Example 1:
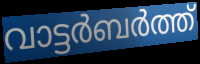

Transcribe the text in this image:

വാട്ടർബർത്ത്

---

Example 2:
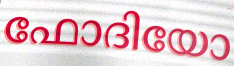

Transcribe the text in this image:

ഫോദിയോ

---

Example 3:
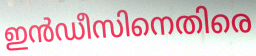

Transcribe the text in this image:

ഇൻഡീസിനെതിരെ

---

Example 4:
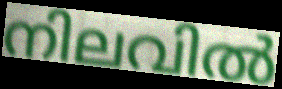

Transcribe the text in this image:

നിലവിൽ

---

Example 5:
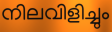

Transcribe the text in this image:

നിലവിളിച്ചും